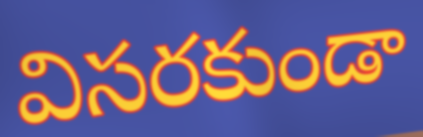
విసరకుండా